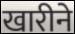
खारीने